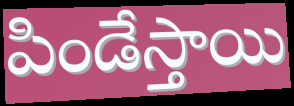
పిండేస్తాయి